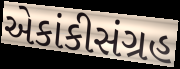
એકાંકીસંગ્રહ